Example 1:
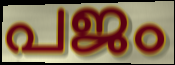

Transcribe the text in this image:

പജം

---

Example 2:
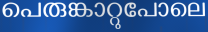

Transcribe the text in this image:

പെരുങ്കാറ്റുപോലെ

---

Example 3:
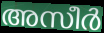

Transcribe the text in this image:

അസീർ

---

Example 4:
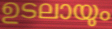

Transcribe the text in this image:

ഉടലായും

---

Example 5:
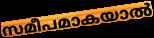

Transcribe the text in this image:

സമീപമാകയാൽ